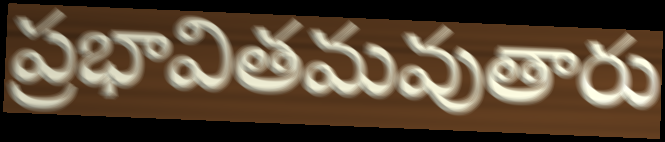
ప్రభావితమవుతారు